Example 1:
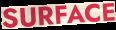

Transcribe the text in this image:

SURFACE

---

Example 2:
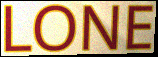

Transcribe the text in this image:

LONE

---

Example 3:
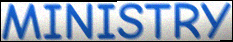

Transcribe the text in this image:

MINISTRY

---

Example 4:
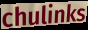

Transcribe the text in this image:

chulinks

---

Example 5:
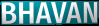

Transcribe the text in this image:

BHAVAN